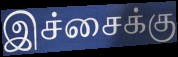
இச்சைக்கு